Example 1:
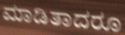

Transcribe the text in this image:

ಮಾಡಿತಾದರೂ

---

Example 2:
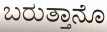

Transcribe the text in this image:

ಬರುತ್ತಾನೊ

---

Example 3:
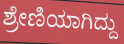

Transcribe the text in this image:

ಶ್ರೇಣಿಯಾಗಿದ್ದು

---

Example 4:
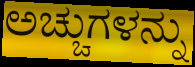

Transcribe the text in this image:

ಅಚ್ಚುಗಳನ್ನು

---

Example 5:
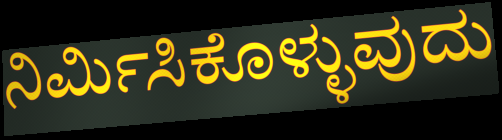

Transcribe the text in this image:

ನಿರ್ಮಿಸಿಕೊಳ್ಳುವುದು